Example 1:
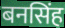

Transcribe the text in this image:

बनसिंह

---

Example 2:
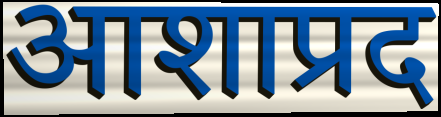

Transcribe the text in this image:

आशाप्रद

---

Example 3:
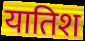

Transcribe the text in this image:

यातिश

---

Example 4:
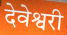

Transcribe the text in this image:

देवेश्वरी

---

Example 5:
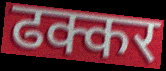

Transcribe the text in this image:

ढक्कर